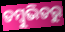
ତମ୍ବୁଭିତରୁ